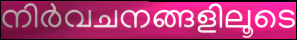
നിർവചനങ്ങളിലൂടെ